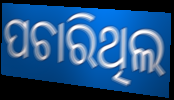
ପଚାରିଥିଲ